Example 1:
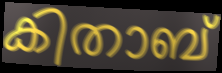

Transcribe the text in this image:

കിതാബ്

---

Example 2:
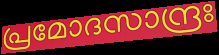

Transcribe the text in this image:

പ്രമോദസാന്ദ്രഃ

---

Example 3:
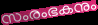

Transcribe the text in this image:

സംരംഭകനും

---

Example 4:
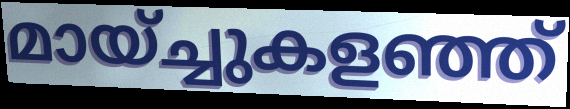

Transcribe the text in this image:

മായ്ച്ചുകളഞ്ഞ്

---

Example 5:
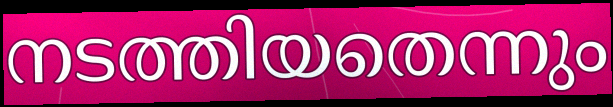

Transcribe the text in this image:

നടത്തിയതെന്നും